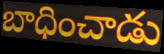
బాధించాడు